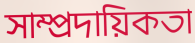
সাম্প্রদায়িকতা